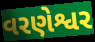
વરણેશ્વર